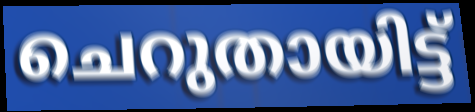
ചെറുതായിട്ട്